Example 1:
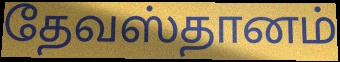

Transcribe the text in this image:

தேவஸ்தானம்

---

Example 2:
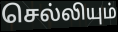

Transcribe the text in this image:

செல்லியும்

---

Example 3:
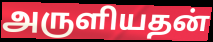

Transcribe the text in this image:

அருளியதன்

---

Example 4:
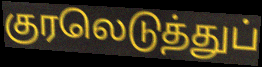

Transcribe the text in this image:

குரலெடுத்துப்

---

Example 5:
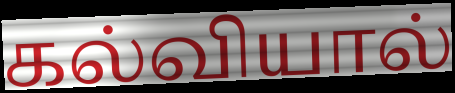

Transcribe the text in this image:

கல்வியால்